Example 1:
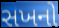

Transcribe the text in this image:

સખનો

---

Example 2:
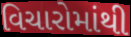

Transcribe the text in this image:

વિચારોમાંથી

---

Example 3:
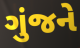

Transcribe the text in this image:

ગુંજને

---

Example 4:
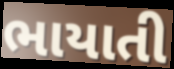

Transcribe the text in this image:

ભાયાતી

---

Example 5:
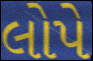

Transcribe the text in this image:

લોપે